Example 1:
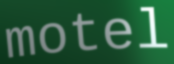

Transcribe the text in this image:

motel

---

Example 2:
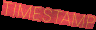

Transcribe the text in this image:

TIMESTAMP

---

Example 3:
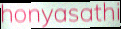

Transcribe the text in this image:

honyasathi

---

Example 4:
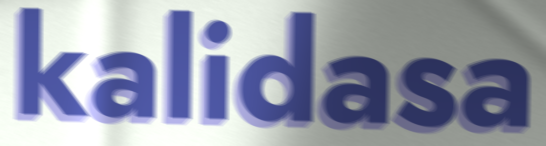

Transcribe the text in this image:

kalidasa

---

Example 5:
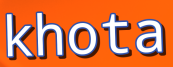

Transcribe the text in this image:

khota